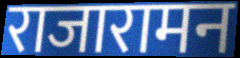
राजारामन